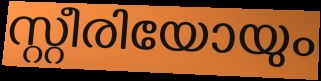
സ്റ്റീരിയോയും